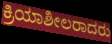
ಕ್ರಿಯಾಶೀಲರಾದರು